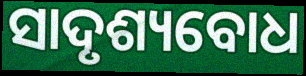
ସାଦୃଶ୍ୟବୋଧ